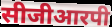
सीजीआरपी